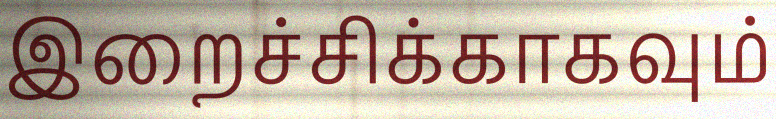
இறைச்சிக்காகவும்